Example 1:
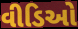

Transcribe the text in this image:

વીડિઓ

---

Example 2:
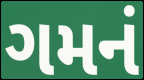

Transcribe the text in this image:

ગમનં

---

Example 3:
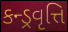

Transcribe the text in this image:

કન્ડ્રવૃત્તિ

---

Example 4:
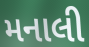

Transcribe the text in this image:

મનાલી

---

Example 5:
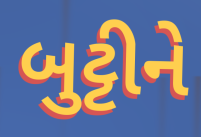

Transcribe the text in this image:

બુટ્ટીને